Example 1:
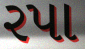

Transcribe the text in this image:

રપા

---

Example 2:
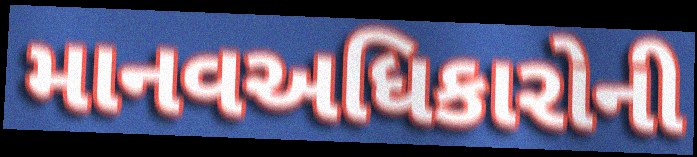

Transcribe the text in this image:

માનવઅધિકારોની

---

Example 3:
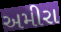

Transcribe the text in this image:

અમીરા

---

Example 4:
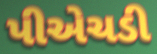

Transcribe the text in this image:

પીએચડી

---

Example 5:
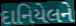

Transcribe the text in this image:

દાનિયેલને